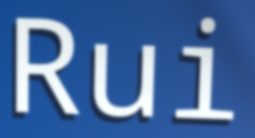
Rui